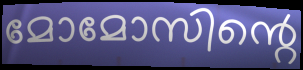
മോമോസിന്റെ